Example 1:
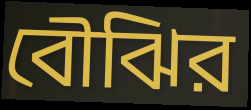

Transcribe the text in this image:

বৌঝির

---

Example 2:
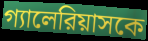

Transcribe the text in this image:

গ্যালেরিয়াসকে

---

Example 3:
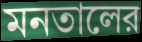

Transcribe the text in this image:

মনতালের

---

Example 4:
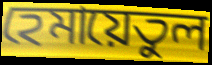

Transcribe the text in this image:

হেমায়েতুল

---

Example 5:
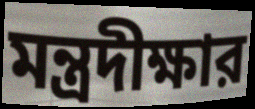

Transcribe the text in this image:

মন্ত্রদীক্ষার